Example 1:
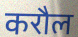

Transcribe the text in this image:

करौल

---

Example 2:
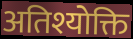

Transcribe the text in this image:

अतिश्योक्ति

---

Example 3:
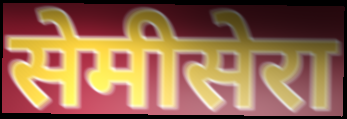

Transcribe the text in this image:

सेमीसेरा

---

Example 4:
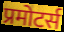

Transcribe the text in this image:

प्रमोटर्स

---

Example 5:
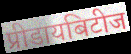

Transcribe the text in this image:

प्रीडायबिटीज